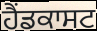
ਹੈਂਡਕਾਸਟ